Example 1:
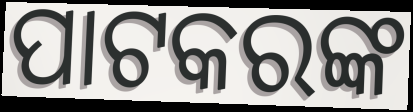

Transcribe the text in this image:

ପାଟକରଙ୍କ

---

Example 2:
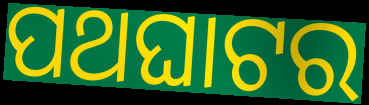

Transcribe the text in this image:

ପଥଘାଟର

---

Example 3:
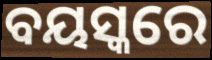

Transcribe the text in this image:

ବୟସ୍କରେ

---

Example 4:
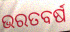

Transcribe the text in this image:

ଭରତବର୍ଷ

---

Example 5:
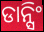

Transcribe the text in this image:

ଡାନ୍ସିଂ